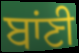
ਬਾਂਣੀ